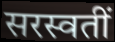
सरस्वतीं